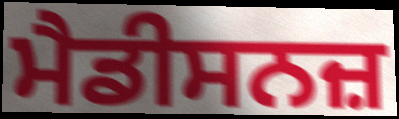
ਮੈਡੀਸਨਜ਼